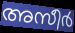
അസീർ